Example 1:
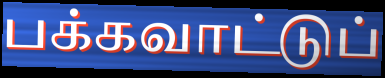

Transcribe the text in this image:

பக்கவாட்டுப்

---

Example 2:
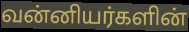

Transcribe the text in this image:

வன்னியர்களின்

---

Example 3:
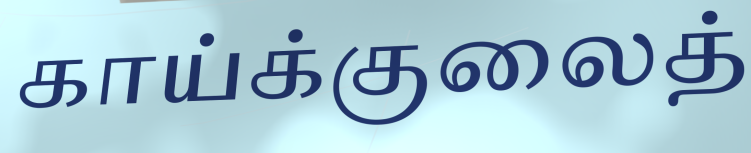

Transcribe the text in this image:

காய்க்குலைத்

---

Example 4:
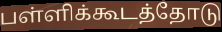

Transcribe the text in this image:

பள்ளிக்கூடத்தோடு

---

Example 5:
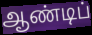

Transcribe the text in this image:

ஆண்டிப்